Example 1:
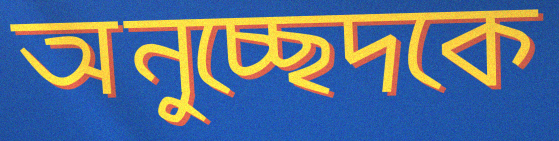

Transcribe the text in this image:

অনুচ্ছেদকে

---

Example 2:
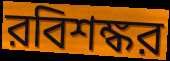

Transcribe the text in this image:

রবিশঙ্কর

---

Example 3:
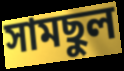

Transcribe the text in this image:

সামছুল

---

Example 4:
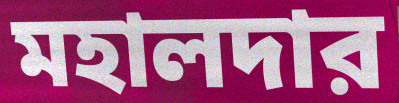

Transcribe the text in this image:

মহালদার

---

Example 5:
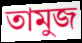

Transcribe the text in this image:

তামুজ